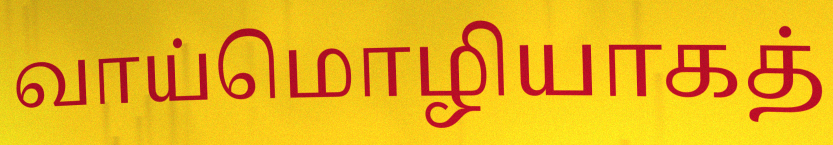
வாய்மொழியாகத்